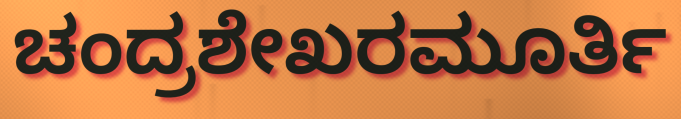
ಚಂದ್ರಶೇಖರಮೂರ್ತಿ